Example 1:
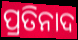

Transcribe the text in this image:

ପ୍ରତିନାଦ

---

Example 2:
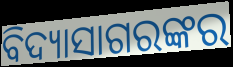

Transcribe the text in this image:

ବିଦ୍ୟାସାଗରଙ୍କର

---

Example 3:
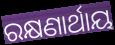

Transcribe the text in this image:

ରକ୍ଷଣାର୍ଥାୟ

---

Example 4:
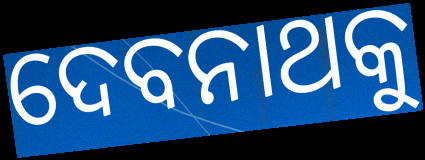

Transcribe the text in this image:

ଦେବନାଥକୁ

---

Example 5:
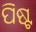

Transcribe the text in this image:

ପିଷ୍ଟ